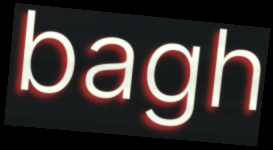
bagh